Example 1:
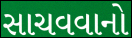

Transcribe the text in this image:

સાચવવાનો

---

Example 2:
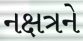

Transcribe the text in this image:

નક્ષત્રને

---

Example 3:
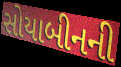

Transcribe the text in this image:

સોયાબીનની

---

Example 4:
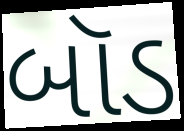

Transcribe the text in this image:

બૉડ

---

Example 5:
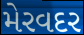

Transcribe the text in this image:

મેરવદર